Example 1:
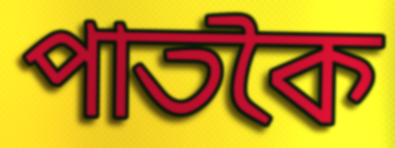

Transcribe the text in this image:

পাতকৈ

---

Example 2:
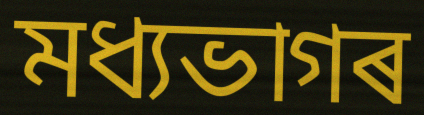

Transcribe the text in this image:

মধ্যভাগৰ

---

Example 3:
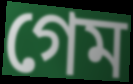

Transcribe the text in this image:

গেম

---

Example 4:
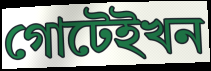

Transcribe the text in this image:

গোটেইখন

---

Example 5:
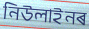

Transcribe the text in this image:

নিউলাইনৰ